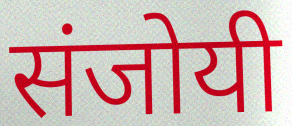
संजोयी